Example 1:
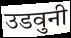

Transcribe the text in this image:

उडवुनी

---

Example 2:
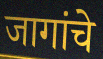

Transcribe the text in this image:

जागांचे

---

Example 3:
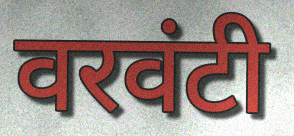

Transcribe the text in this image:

वरवंटी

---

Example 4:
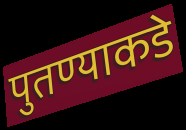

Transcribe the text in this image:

पुतण्याकडे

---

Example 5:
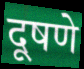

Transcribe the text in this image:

दूषणे